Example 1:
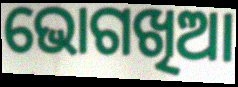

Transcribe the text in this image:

ଭୋଗଖିଆ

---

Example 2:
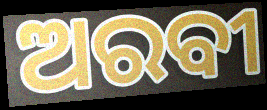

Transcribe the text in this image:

ଅରବୀ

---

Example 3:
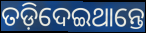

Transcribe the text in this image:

ତଡ଼ିଦେଇଥାନ୍ତେ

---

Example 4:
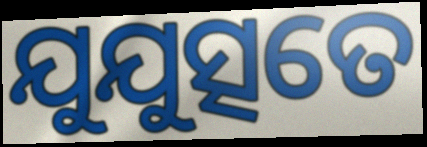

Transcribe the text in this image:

ଯୁଯୁତ୍ସତେ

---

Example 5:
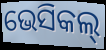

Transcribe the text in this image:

ଭେସିକଲ୍